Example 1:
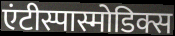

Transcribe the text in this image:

एंटीस्पास्मोडिक्स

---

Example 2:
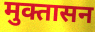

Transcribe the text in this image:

मुक्तासन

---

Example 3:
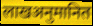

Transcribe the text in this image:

लाखअनुमानित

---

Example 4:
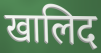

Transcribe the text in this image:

खालिद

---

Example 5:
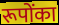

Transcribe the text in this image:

रूपोंका